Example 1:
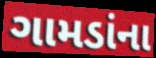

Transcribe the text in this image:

ગામડાંના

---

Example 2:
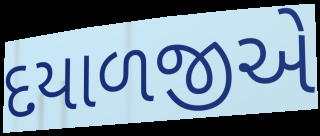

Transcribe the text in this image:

દયાળજીએ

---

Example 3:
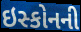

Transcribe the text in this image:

ઇસ્કોનની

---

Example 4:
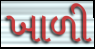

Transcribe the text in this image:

ખાળી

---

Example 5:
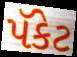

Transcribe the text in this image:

પૅકેટ